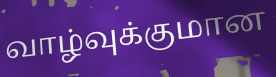
வாழ்வுக்குமான